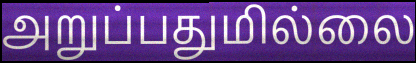
அறுப்பதுமில்லை